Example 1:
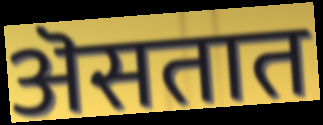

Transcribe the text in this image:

ऄसतात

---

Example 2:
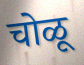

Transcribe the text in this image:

चोळू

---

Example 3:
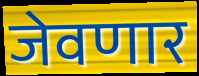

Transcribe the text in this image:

जेवणार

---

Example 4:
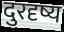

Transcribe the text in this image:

दुरदृष्य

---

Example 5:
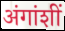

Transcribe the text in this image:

अंगांशीं